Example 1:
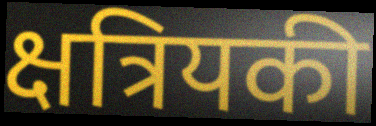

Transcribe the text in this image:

क्षत्रियकी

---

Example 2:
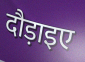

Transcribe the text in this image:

दौड़ाइए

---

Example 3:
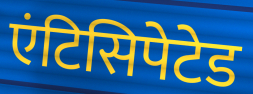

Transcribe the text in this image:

एंटिसिपेटेड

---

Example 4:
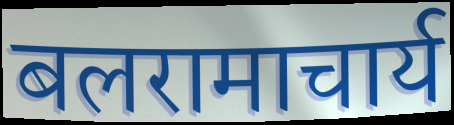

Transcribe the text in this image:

बलरामाचार्य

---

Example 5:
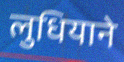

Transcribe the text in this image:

लुधियाने